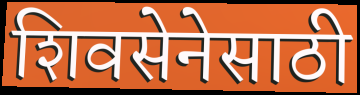
शिवसेनेसाठी